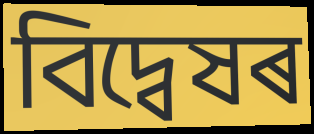
বিদ্বেষৰ